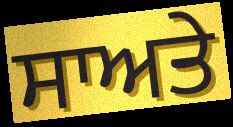
ਸਾਅਤੇ